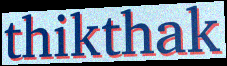
thikthak